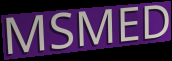
MSMED